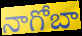
నాగోబా